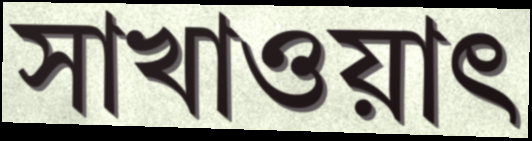
সাখাওয়াৎ